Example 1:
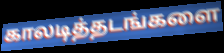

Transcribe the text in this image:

காலடித்தடங்களை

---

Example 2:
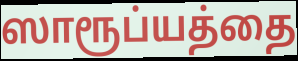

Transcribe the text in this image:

ஸாரூப்யத்தை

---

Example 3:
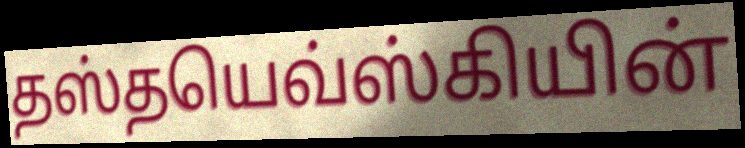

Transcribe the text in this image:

தஸ்தயெவ்ஸ்கியின்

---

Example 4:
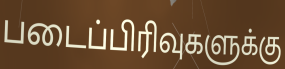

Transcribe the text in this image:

படைப்பிரிவுகளுக்கு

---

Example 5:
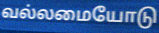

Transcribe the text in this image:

வல்லமையோடு